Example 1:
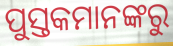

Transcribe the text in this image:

ପୁସ୍ତକମାନଙ୍କରୁ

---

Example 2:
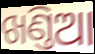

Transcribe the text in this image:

ଖଣ୍ତିଆ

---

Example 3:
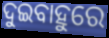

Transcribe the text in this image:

ଦୁଇବାହୁରେ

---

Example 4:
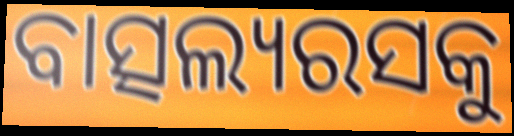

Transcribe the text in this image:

ବାତ୍ସଲ୍ୟରସକୁ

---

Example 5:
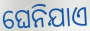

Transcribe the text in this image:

ଘେନିଯାଏ